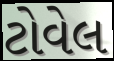
ટોવેલ